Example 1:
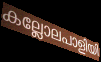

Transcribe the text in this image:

കല്ലോലപാളിയി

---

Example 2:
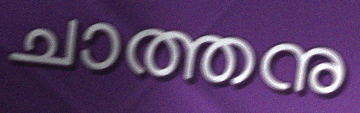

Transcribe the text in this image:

ചാത്തനു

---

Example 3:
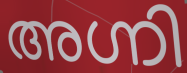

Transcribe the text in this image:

അഗ്നി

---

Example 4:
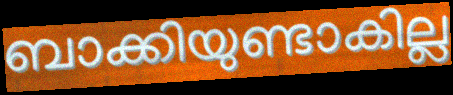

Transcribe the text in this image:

ബാക്കിയുണ്ടാകില്ല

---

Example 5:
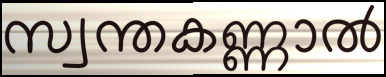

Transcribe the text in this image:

സ്വന്തകണ്ണാൽ